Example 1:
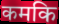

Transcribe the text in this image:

कमकि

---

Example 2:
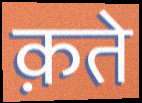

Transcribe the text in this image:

क़ते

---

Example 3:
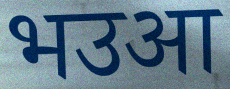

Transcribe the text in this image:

भउआ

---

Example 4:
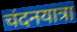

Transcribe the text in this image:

चंदनयात्रा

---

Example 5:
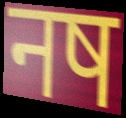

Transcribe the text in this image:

नष